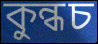
কুন্ধচ